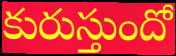
కురుస్తుందో